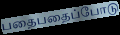
பதைபதைப்போடு